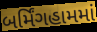
બર્મિંગહામમાં